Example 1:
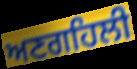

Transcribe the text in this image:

ਅਣਗਹਿਲੀ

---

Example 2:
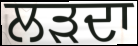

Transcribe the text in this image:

ਲੜਦਾ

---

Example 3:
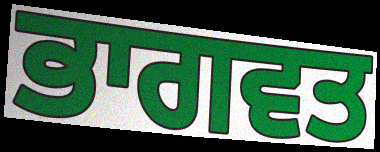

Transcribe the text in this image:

ਭਾਗਵਤ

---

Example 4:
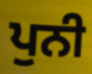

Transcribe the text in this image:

ਪੁਨੀ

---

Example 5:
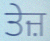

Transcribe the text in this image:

ਤੇਜ਼